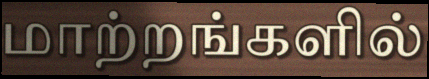
மாற்றங்களில்